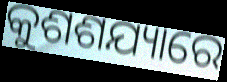
କୁଶଶଯ୍ୟାରେ